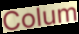
Colum